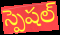
స్పెషల్